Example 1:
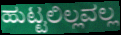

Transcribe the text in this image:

ಹುಟ್ಟಲಿಲ್ಲವಲ್ಲ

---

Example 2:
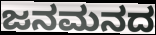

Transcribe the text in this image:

ಜನಮನದ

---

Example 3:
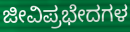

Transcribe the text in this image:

ಜೀವಿಪ್ರಭೇದಗಳ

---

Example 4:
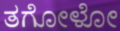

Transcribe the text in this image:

ತಗೋಳೋ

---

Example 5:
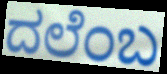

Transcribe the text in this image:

ದಲೆಂಬ